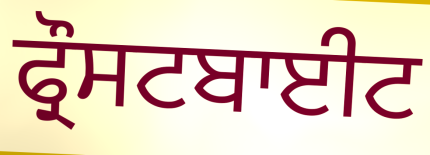
ਫ੍ਰੌਸਟਬਾਈਟ